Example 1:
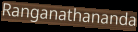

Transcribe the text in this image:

Ranganathananda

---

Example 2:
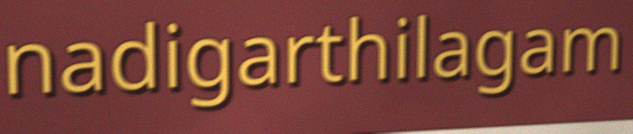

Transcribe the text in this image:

nadigarthilagam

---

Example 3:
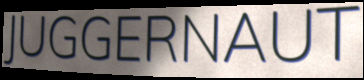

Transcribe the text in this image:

JUGGERNAUT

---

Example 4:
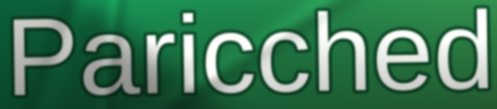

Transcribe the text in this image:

Paricched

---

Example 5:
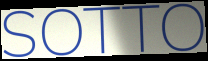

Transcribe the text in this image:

SOTTO